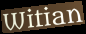
Witian